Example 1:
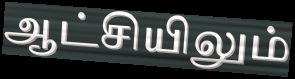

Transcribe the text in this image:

ஆட்சியிலும்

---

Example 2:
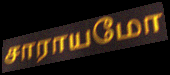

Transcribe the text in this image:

சாராயமோ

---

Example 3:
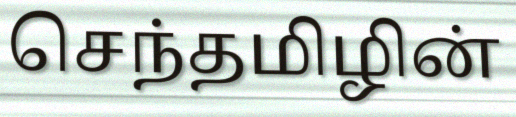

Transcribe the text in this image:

செந்தமிழின்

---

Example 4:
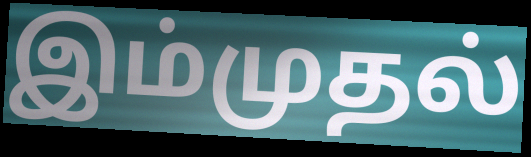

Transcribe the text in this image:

இம்முதல்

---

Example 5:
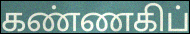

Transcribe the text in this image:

கண்ணகிப்